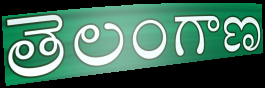
తెలంగాణ